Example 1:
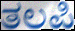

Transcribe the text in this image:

ತಲಪಿ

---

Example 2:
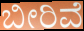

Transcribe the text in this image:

ಬೀರಿವೆ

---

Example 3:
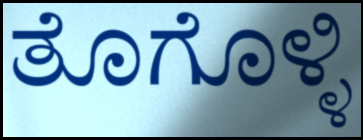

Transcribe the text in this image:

ತೊಗೊಳ್ಳಿ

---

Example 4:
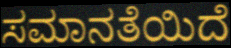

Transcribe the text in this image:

ಸಮಾನತೆಯಿದೆ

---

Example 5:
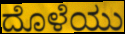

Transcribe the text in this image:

ದೊಳೆಯು